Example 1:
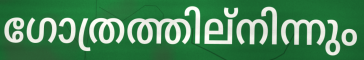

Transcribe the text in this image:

ഗോത്രത്തില്നിന്നും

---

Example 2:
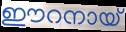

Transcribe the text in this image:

ഈറനായ്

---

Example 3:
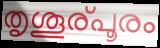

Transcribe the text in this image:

തൃശൂര്പൂരം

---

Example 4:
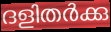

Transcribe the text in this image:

ദളിതർക്കു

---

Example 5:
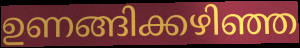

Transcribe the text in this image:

ഉണങ്ങിക്കഴിഞ്ഞ